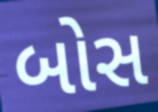
બોસ